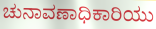
ಚುನಾವಣಾಧಿಕಾರಿಯು